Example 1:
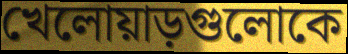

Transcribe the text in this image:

খেলোয়াড়গুলোকে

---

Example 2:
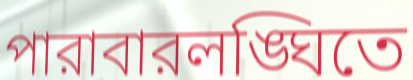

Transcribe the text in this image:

পারাবারলঙ্ঘিতে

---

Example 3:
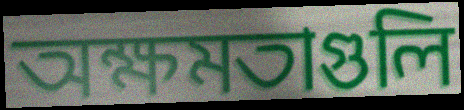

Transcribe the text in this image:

অক্ষমতাগুলি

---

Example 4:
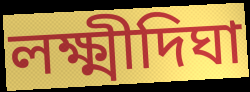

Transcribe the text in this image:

লক্ষ্মীদিঘা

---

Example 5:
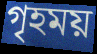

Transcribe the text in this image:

গৃহময়